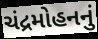
ચંદ્રમોહનનું